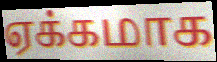
ஏக்கமாக